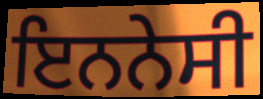
ਇਨਨੇਸੀ